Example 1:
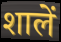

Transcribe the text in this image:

शालें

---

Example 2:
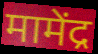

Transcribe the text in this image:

मामेंद्र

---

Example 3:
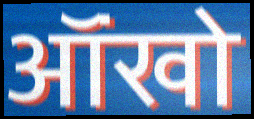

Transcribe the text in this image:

ऑंखो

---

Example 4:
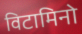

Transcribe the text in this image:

विटामिनो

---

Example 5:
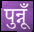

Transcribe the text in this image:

पुन्नूँ